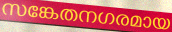
സങ്കേതനഗരമായ